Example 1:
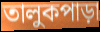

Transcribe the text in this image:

তালুকপাড়া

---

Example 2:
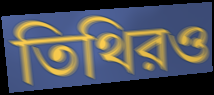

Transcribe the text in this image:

তিথিরও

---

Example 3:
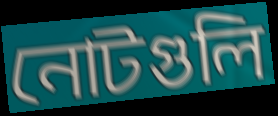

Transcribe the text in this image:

নোটগুলি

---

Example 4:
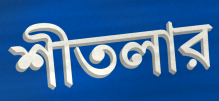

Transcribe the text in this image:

শীতলার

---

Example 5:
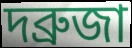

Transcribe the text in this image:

দব্রুজা